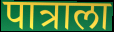
पात्राला